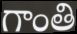
గాంతి